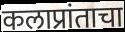
कलाप्रांताचा